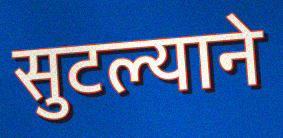
सुटल्याने